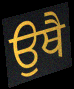
ਉਥੈ